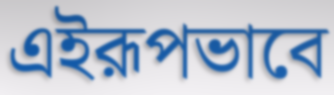
এইরূপভাবে